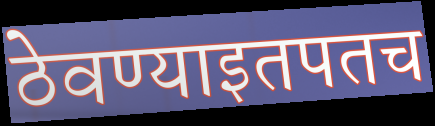
ठेवण्याइतपतच